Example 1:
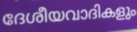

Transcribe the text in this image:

ദേശീയവാദികളും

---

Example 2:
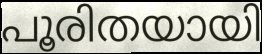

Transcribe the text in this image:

പൂരിതയായി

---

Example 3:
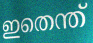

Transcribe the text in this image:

ഇതെന്ത്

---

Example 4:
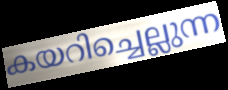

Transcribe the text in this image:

കയറിച്ചെല്ലുന്ന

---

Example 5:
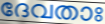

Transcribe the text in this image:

ദേവതാഃ